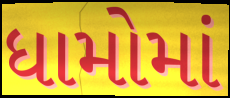
ધામોમાં